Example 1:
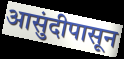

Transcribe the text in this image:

आसुंदीपासून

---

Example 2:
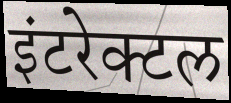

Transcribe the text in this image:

इंटरेक्टल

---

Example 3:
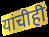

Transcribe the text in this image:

यांचीही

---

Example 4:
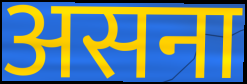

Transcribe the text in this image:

असना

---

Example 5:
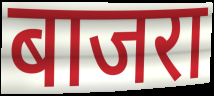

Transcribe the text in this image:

बाजरा